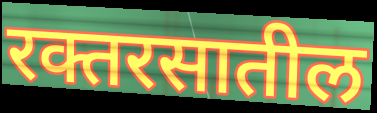
रक्तरसातील